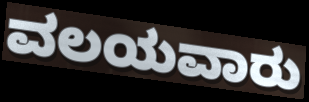
ವಲಯವಾರು